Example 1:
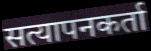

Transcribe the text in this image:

सत्यापनकर्ता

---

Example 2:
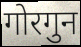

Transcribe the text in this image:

गोरगुन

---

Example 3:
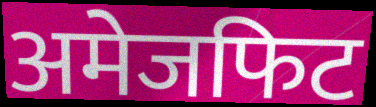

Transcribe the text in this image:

अमेजफिट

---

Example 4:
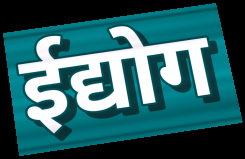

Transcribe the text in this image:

ईद्योग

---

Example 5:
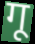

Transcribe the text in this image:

गू